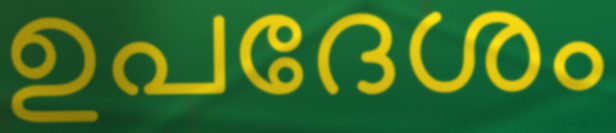
ഉപദേശം